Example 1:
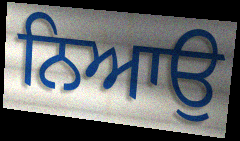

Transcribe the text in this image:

ਨਿਆਉ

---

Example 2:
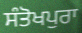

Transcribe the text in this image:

ਸੰਤੋਖਪੁਰਾ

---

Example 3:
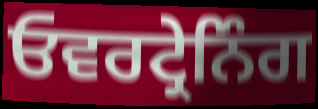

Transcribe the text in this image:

ਓਵਰਟ੍ਰੇਨਿੰਗ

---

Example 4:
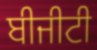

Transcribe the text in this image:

ਬੀਜੀਟੀ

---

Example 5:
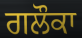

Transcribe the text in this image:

ਗਲੌਕਾ